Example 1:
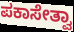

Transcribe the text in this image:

ಪಕಾಸೇತ್ವಾ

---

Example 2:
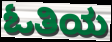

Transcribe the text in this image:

ಓತಿಯ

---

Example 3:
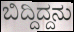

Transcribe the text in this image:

ಬಿದ್ದಿದ್ದನು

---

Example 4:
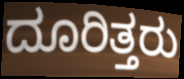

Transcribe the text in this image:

ದೂರಿತ್ತರು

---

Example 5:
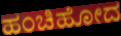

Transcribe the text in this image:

ಹಂಚಿಹೋದ